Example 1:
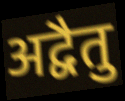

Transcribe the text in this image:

अद्वैतु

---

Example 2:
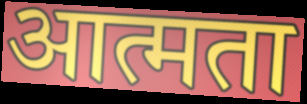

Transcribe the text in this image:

आत्मता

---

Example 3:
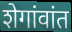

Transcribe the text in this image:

शेगांवांत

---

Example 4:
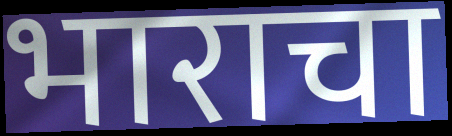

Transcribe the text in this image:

भाराचा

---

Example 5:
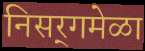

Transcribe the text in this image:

निसर्गमेळा